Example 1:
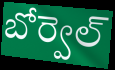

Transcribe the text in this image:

బోర్వెల్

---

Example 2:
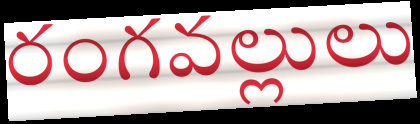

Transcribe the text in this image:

రంగవల్లులు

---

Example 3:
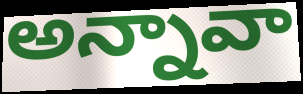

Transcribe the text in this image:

అన్నావా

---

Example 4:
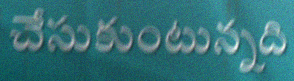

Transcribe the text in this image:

చేసుకుంటున్నది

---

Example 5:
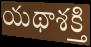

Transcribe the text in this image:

యథాశక్తి